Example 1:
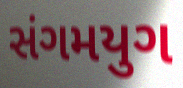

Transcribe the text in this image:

સંગમયુગ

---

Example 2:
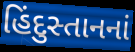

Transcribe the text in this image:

હિંદુસ્તાનનાં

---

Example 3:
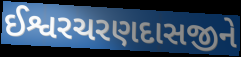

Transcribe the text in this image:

ઈશ્વરચરણદાસજીને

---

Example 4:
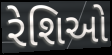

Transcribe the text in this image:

રેશિઓ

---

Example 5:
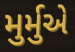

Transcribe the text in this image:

મુર્મુએ